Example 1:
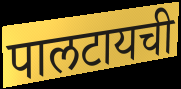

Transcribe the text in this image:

पालटायची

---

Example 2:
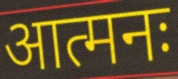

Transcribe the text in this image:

आत्मनः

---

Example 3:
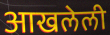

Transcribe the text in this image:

आखलेली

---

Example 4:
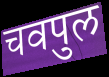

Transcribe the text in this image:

चवपुल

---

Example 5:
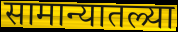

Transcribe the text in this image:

सामान्यातल्या